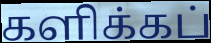
களிக்கப்